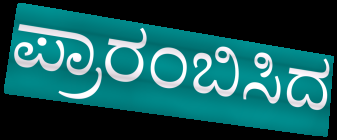
ಪ್ರಾರಂಬಿಸಿದ